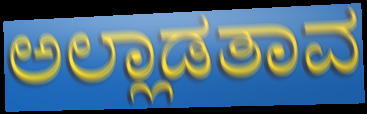
ಅಲ್ಲಾಡತಾವ